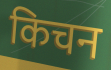
किचन